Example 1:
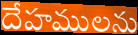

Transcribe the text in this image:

దేహములను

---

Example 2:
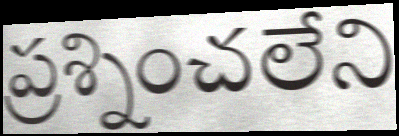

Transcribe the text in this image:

ప్రశ్నించలేని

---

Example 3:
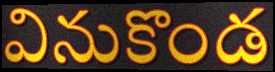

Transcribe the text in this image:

వినుకొండ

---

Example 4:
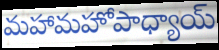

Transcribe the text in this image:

మహామహోపాధ్యాయ్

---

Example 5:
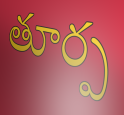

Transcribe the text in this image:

తూర్ప